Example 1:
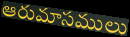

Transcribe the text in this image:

ఆరుమాసములు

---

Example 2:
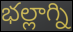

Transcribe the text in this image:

భల్లాగ్ని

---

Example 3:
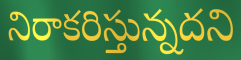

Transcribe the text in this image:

నిరాకరిస్తున్నదని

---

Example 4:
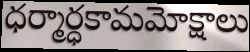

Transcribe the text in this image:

ధర్మార్ధకామమోక్షాలు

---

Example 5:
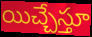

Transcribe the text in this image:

యిచ్చేస్తూ